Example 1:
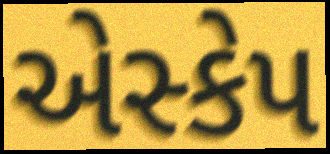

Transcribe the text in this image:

એસ્કેપ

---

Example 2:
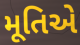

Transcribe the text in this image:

મૂતિએ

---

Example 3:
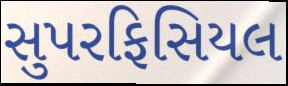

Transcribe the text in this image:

સુપરફિસિયલ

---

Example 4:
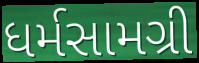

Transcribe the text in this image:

ધર્મસામગ્રી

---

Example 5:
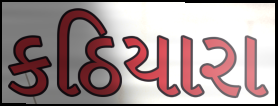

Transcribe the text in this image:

કઠિયારા